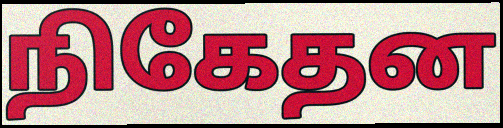
நிகேதன